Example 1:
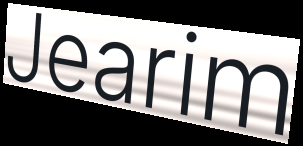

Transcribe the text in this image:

Jearim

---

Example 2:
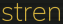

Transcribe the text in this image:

stren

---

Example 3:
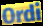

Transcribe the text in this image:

Ordi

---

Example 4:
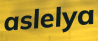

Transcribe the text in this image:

aslelya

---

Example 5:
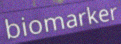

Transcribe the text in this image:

biomarker